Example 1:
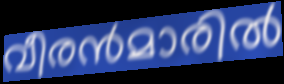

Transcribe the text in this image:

വീരൻമാരിൽ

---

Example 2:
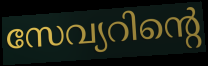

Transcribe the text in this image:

സേവ്യറിന്റെ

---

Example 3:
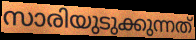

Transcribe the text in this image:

സാരിയുടുക്കുന്നത്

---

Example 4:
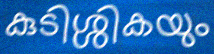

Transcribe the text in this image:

കുടിശ്ശികയും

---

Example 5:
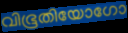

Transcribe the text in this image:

വിഭൂതിയോഗോ